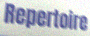
Repertoire